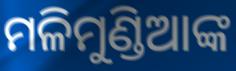
ମଳିମୁଣ୍ଡିଆଙ୍କ